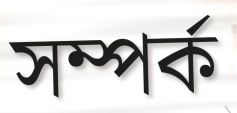
সম্পৰ্ক